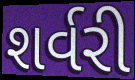
શર્વરી